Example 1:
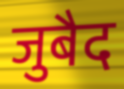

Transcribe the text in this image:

जुबैद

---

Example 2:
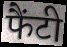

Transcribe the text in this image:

फैंटी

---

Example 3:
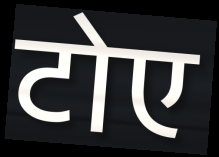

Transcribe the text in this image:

टोए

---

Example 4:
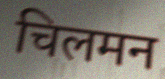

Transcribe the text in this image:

चिलमन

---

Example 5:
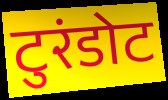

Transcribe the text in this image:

टुरंडोट